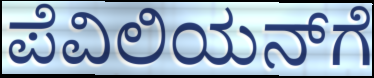
ಪೆವಿಲಿಯನ್‌ಗೆ